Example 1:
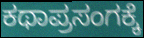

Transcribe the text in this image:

ಕಥಾಪ್ರಸಂಗಕ್ಕೆ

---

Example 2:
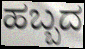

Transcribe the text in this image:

ಹಬ್ಬದ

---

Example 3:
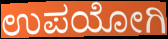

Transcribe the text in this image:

ಉಪಯೋಗಿ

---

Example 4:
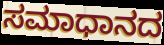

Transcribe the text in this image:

ಸಮಾಧಾನದ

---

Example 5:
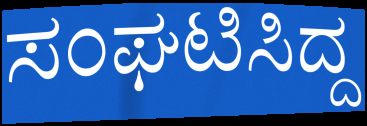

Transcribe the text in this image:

ಸಂಘಟಿಸಿದ್ದ